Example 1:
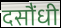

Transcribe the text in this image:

दसौंधी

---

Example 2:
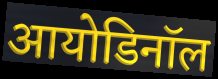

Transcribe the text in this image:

आयोडिनॉल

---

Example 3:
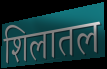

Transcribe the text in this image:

शिलातल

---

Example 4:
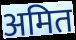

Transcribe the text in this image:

अमित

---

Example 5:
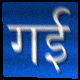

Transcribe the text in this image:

गई